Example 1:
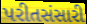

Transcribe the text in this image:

પરીતસંસારી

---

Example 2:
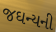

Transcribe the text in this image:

જઘન્યની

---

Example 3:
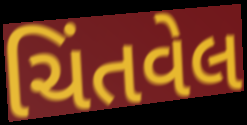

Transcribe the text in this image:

ચિંતવેલ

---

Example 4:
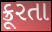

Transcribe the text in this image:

ક્રૂરતા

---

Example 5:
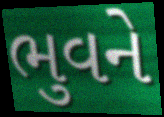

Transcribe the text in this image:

ભુવને